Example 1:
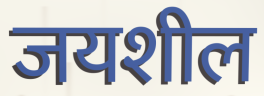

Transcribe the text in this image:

जयशील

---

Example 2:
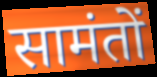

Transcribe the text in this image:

सामंतों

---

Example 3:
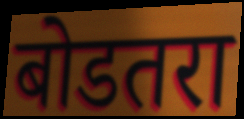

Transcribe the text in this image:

बोडतरा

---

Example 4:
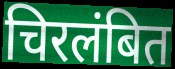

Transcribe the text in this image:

चिरलंबित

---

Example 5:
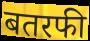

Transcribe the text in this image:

बतरफी